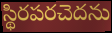
స్థిరపరచెదను